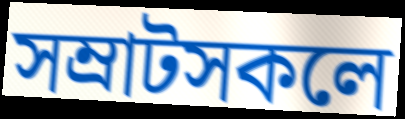
সম্ৰাটসকলে